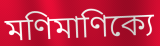
মণিমাণিক্যে